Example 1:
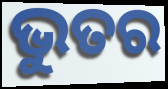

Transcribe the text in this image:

ଭୁତର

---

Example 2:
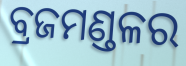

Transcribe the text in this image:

ବ୍ରଜମଣ୍ଡଳର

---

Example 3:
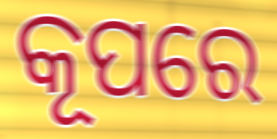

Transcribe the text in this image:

କୂପରେ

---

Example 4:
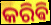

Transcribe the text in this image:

କରିଵି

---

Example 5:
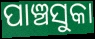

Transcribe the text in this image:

ପାଞ୍ଚସୁକା